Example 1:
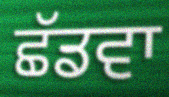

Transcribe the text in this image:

ਛੱਡਵਾ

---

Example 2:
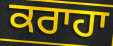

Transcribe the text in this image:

ਕਰਾਹਾ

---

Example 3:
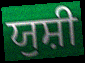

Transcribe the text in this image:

ਯੁਸ਼ੀ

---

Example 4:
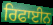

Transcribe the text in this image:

ਰਿਫਾਈਨ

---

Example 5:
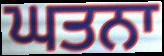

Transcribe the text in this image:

ਘਤਨਾ